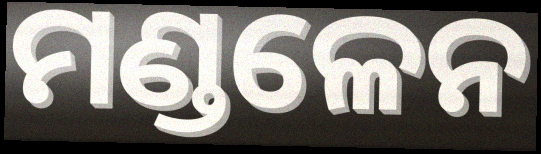
ମଣ୍ଡଳେନ